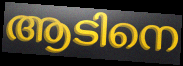
ആടിനെ